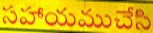
సహాయముచేసి